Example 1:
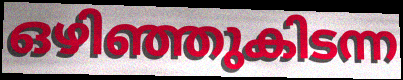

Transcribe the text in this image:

ഒഴിഞ്ഞുകിടന്ന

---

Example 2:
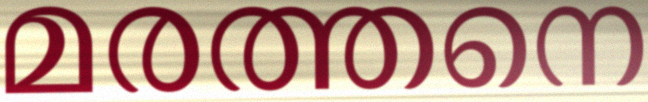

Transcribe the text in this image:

മരത്തനെ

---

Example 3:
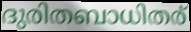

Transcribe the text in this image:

ദുരിതബാധിതര്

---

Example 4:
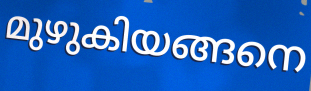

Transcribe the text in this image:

മുഴുകിയങ്ങനെ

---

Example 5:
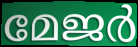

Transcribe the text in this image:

മേജർ